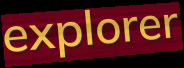
explorer